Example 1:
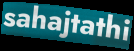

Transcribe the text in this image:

sahajtathi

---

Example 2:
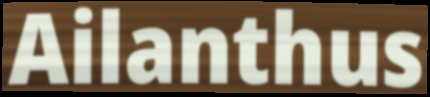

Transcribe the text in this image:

Ailanthus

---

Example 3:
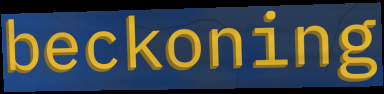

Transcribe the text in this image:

beckoning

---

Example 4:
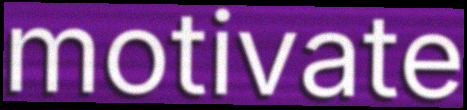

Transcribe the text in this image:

motivate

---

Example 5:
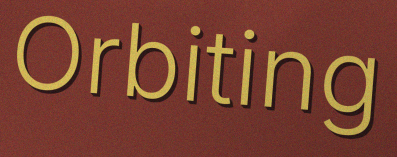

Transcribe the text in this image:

Orbiting